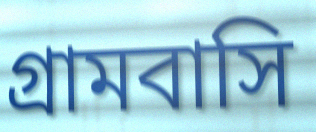
গ্রামবাসি